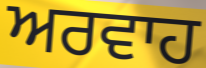
ਅਰਵਾਹ